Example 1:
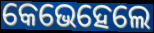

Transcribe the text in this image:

କେଭେହେଲେ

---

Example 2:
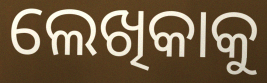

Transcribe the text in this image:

ଲେଖିକାକୁ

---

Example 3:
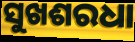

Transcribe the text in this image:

ସୁଖଶରଧା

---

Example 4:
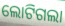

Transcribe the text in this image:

ଲୋଟିଗଲା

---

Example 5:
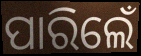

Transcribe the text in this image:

ପାରିଲେଁ